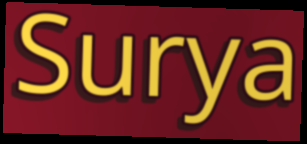
Surya